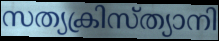
സത്യക്രിസ്ത്യാനി